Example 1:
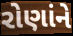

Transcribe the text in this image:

રોણાંને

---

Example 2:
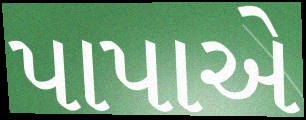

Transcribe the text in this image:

પાપાએ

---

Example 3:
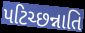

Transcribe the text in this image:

પટિચ્છન્નાતિ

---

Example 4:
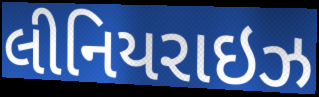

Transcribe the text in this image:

લીનિયરાઇઝ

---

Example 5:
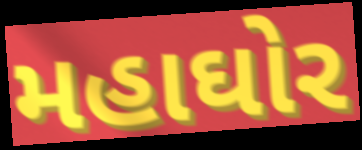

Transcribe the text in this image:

મહાઘોર